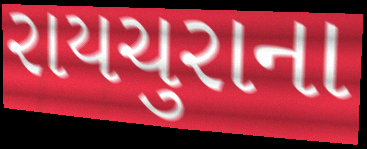
રાયચુરાના